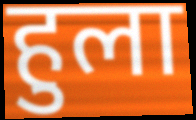
हुला